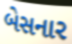
બેસનાર